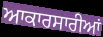
ਆਕਾਰਸਾਰੀਆਂ